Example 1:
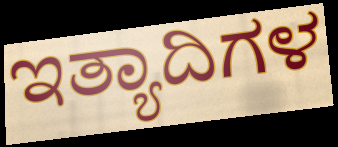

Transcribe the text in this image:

ಇತ್ಯಾದಿಗಳ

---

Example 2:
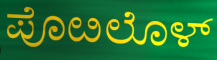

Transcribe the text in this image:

ಪೊೞಲೊಳ್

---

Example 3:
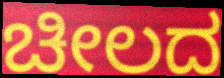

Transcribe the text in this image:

ಚೀಲದ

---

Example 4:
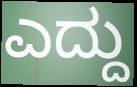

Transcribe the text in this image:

ಎದ್ದು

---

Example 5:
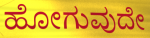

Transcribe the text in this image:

ಹೋಗುವುದೇ